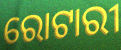
ରୋଟାରୀ